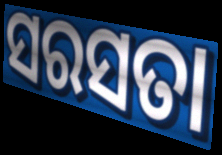
ସରସତା